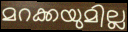
മറക്കയുമില്ല